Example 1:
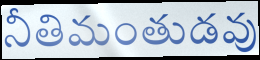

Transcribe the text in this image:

నీతిమంతుడవు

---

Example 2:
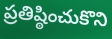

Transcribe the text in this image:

ప్రతిష్ఠించుకొని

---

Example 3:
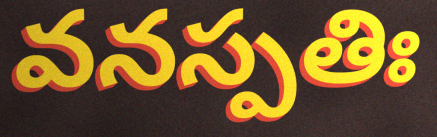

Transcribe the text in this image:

వనస్పతిః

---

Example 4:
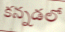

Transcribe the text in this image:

కన్నడలో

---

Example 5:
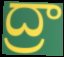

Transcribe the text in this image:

ద్రా